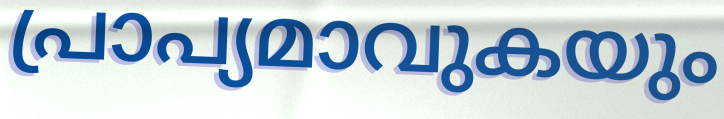
പ്രാപ്യമാവുകയും